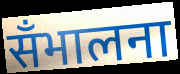
सँभालना